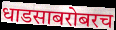
धाडसाबरोबरच